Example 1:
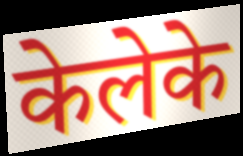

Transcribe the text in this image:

केलेके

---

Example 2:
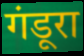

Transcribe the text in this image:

गंडूरा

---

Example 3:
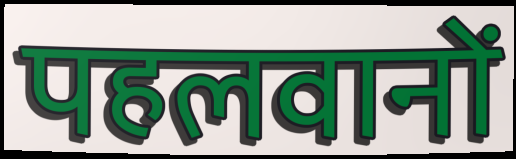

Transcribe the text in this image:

पहलवानों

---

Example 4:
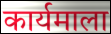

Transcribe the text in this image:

कार्यमाला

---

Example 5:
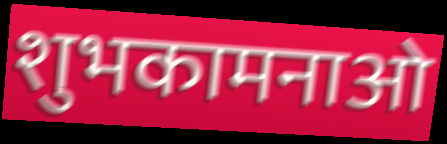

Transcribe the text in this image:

शुभकामनाओ